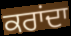
ਕਰਾਂਦਾ